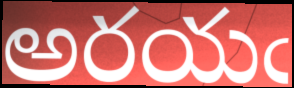
అరయఁ